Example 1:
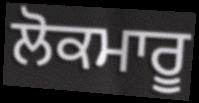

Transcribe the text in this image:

ਲੋਕਮਾਰੂ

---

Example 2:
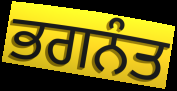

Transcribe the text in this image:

ਭਗਨੰਤ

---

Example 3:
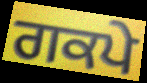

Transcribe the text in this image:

ਗਕਪੇ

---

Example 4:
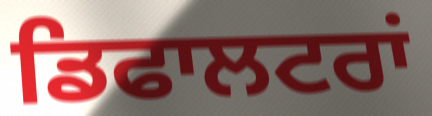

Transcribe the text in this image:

ਡਿਫਾਲਟਰਾਂ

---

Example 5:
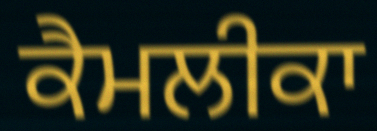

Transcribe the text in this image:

ਕੈਮਲੀਕਾ